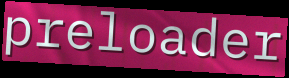
preloader